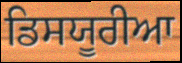
ਡਿਸਯੂਰੀਆ